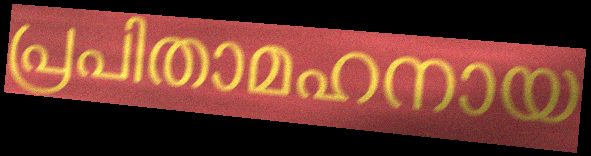
പ്രപിതാമഹനായ